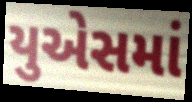
યુએસમાં